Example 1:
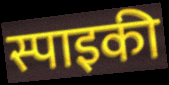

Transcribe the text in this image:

स्पाइकी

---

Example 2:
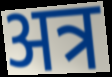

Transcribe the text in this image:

अत्र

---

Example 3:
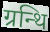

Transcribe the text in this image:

ग्रन्थि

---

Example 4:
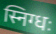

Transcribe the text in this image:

स्निग्धः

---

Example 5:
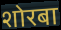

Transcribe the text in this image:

शोरबा